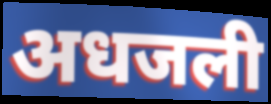
अधजली